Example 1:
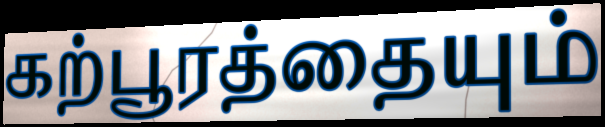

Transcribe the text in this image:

கற்பூரத்தையும்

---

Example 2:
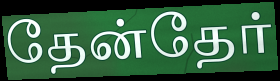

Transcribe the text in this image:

தேன்தேர்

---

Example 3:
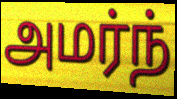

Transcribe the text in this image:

அமர்ந்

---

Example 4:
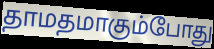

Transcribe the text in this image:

தாமதமாகும்போது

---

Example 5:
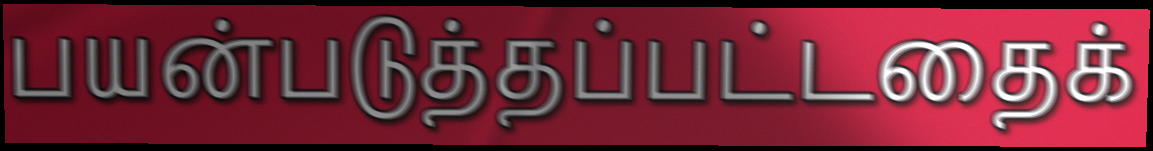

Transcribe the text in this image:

பயன்படுத்தப்பட்டதைக்